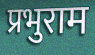
प्रभुराम